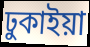
ঢুকাইয়া